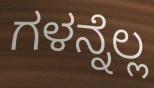
ಗಳನ್ನೆಲ್ಲ